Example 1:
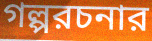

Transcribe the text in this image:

গল্পরচনার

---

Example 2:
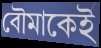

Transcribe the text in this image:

বৌমাকেই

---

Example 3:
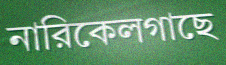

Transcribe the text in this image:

নারিকেলগাছে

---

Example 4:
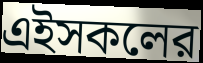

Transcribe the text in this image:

এইসকলের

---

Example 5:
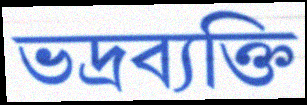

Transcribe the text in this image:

ভদ্রব্যক্তি